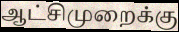
ஆட்சிமுறைக்கு